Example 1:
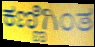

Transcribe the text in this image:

ಕಣ್ಣಿಗಿಂತ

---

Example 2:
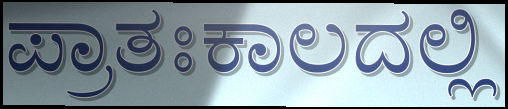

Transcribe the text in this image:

ಪ್ರಾತಃಕಾಲದಲ್ಲಿ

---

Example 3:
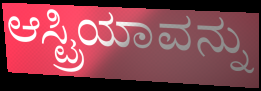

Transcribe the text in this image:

ಆಸ್ಟ್ರಿಯಾವನ್ನು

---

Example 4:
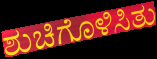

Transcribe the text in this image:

ಶುಚಿಗೊಳಿಸಿತು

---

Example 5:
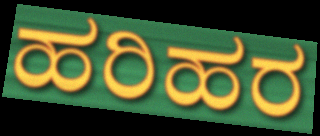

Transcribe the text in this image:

ಹರಿಹರ